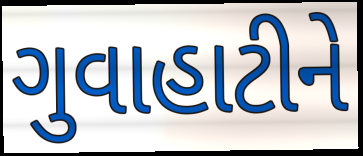
ગુવાહાટીને